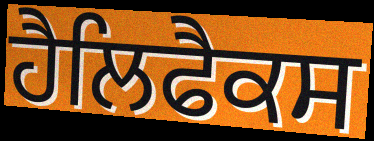
ਹੈਲਿਫੈਕਸ